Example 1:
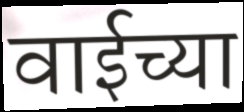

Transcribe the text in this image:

वाईच्या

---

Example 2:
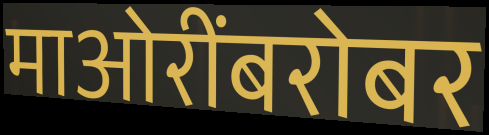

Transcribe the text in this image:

माओरींबरोबर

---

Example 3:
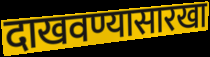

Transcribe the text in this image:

दाखवण्यासारखा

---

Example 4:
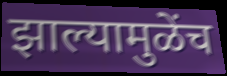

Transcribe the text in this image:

झाल्यामुळेंच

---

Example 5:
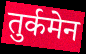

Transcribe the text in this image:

तुर्कमेन